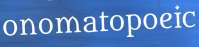
onomatopoeic